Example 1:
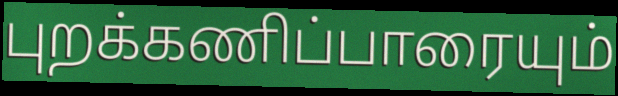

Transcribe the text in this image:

புறக்கணிப்பாரையும்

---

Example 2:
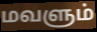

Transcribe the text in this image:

மவளும்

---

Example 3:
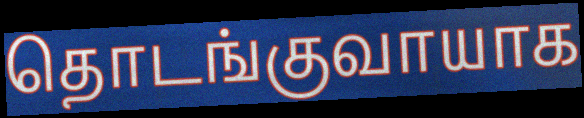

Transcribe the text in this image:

தொடங்குவாயாக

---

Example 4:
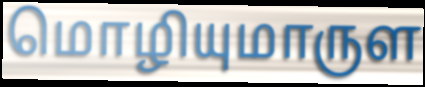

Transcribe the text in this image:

மொழியுமாருள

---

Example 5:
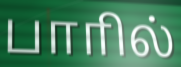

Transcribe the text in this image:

பாரில்